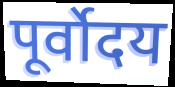
पूर्वोदय